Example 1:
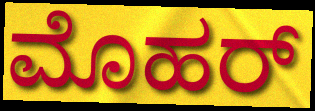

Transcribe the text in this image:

ಮೊಹರ್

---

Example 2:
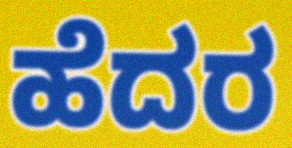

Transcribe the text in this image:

ಹೆದರ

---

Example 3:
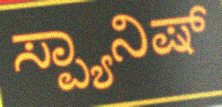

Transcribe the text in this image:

ಸ್ಪ್ಯಾನಿಷ್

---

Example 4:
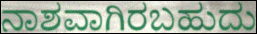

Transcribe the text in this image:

ನಾಶವಾಗಿರಬಹುದು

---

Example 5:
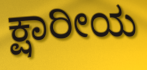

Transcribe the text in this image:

ಕ್ಷಾರೀಯ